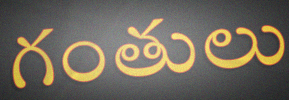
గంతులు